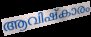
ആവിഷ്‌കാരം